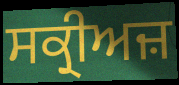
ਸਕ੍ਰੀਅਜ਼